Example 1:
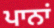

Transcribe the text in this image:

ਪਾਨਾਂ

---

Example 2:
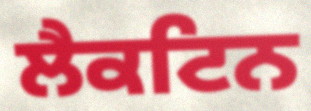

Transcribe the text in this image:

ਲੈਕਟਿਨ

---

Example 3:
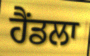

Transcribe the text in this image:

ਹੈਂਡਲਾ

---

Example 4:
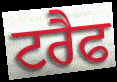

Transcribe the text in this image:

ਟਰੈਫ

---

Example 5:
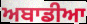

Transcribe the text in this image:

ਅਬਾਡੀਆ